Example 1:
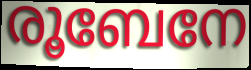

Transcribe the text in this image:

രൂബേനേ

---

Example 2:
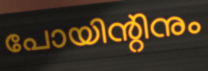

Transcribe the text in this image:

പോയിന്റിനും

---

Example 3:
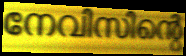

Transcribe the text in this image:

നേവിസിന്റെ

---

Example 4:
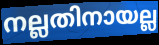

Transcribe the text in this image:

നല്ലതിനായല്ല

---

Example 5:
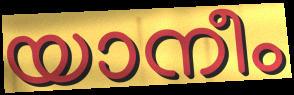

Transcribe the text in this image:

യാനീം